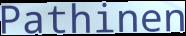
Pathinen